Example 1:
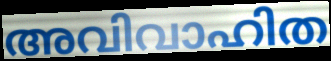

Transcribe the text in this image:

അവിവാഹിത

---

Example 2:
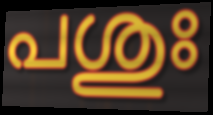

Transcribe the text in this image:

പശുഃ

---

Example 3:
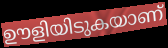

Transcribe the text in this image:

ഊളിയിടുകയാണ്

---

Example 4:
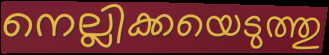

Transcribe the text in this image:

നെല്ലിക്കയെടുത്തു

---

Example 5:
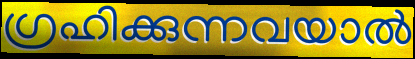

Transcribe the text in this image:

ഗ്രഹിക്കുന്നവയാൽ